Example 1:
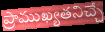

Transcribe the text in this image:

ప్రాముఖ్యతనిచ్చే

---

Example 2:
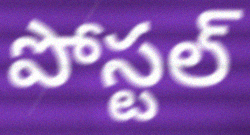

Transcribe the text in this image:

పోస్టల్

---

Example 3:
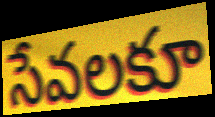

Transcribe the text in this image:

సేవలకూ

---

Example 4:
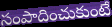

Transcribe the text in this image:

సంపాదించుకుంటే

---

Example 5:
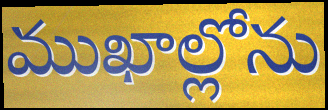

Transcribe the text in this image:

ముఖాల్లోను